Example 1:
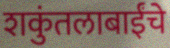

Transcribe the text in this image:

शकुंतलाबाईंचे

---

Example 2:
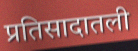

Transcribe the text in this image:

प्रतिसादातली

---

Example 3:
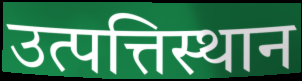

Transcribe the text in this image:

उत्पत्तिस्थान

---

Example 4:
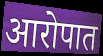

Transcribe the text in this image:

आरोपात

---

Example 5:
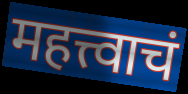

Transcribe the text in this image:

महत्त्वाचं